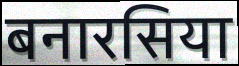
बनारसिया